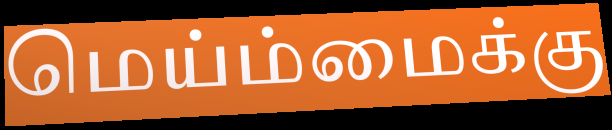
மெய்ம்மைக்கு